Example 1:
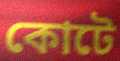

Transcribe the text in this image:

কোটে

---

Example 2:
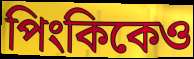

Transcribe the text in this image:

পিংকিকেও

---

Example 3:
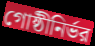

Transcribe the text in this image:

গোষ্ঠীনির্ভর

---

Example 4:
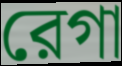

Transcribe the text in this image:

রেগা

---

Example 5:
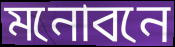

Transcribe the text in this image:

মনোবনে